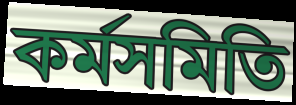
কর্মসমিতি